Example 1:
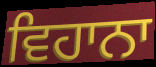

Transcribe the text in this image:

ਵਿਹਾਨਾ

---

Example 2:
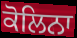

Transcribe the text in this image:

ਕੋਲਿਨਾ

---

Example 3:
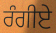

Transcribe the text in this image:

ਰੰਗੀਏ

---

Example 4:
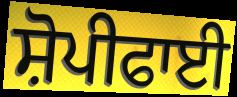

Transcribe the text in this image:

ਸ਼ੋਪੀਫਾਈ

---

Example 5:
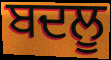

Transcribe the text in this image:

ਬਦਲੂ